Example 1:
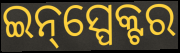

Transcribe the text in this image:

ଇନ୍‌ସ୍ପେକ୍ଟର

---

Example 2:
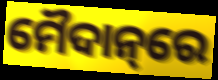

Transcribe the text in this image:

ମୈଦାନ୍‌ରେ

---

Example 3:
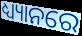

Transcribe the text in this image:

ଧ୍ୟ୍ୟାନରେ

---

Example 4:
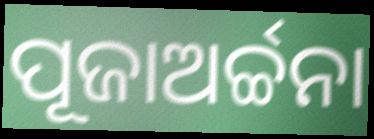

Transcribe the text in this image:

ପୂଜାଅର୍ଚ୍ଚନା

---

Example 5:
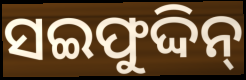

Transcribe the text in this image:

ସଇଫୁଦ୍ଦିନ୍